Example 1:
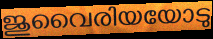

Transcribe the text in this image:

ജുവൈരിയയോടു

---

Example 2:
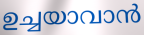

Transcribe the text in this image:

ഉച്ചയാവാൻ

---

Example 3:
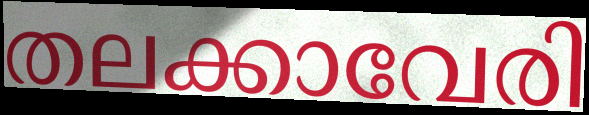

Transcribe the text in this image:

തലക്കാവേരി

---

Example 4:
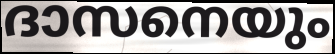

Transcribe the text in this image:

ദാസനെയും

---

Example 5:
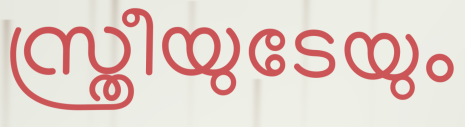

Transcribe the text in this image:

സ്ത്രീയുടേയും